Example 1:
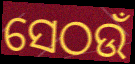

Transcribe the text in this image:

ସେଠଉଁ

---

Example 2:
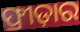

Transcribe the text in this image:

ଫ୍ରୀଡ଼ାର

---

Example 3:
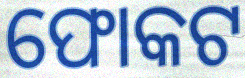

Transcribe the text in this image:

ଫୋକଟ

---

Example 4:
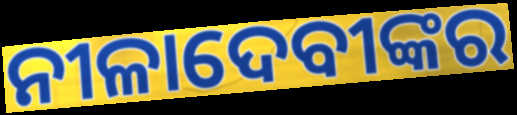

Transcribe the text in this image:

ନୀଳାଦେବୀଙ୍କର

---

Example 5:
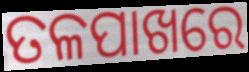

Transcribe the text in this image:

ତଳପାଖରେ